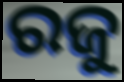
ରଜୁ